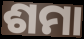
ଶମା